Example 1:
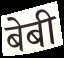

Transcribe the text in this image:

बेबी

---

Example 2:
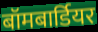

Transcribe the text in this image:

बॉमबार्डियर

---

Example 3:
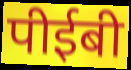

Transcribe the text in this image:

पीईबी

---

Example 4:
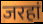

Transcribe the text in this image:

जरहां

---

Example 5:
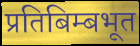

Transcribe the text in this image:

प्रतिबिम्बभूत